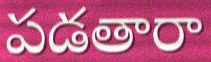
పడతారా